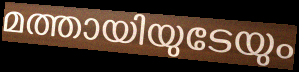
മത്തായിയുടേയും